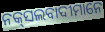
ନକ୍‌ସଲବାଦୀମାନେ